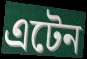
এটেন